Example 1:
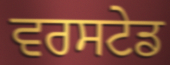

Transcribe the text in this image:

ਵਰਸਟੇਡ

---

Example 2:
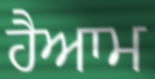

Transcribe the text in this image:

ਹੈਆਮ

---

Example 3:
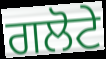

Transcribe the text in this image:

ਗਲੋਟੇ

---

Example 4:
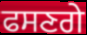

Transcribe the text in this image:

ਫਸਣਗੇ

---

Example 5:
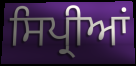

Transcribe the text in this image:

ਸਿਪ੍ਰੀਆਂ